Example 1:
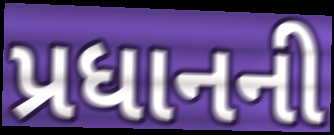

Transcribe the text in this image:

પ્રધાનની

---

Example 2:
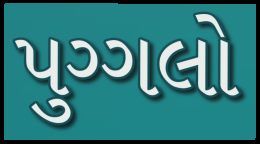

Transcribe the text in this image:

પુગ્ગલો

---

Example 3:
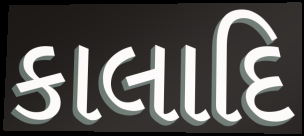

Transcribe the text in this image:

કાલાદિ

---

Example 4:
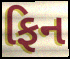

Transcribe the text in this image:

ફિન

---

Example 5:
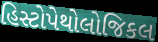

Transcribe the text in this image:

હિસ્ટોપેથોલોજિકલ